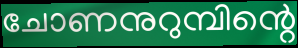
ചോണനുറുമ്പിന്റെ